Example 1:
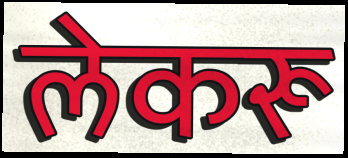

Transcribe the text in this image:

लेकरू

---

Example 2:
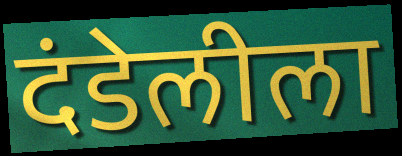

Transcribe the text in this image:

दंडेलीला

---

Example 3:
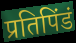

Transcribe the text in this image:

प्रतिपिंडं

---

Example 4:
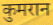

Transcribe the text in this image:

कुमरान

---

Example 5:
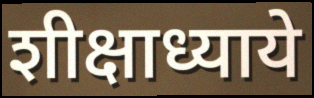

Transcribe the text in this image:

शीक्षाध्याये